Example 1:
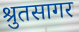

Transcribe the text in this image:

श्रुतसागर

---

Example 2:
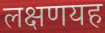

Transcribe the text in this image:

लक्षणयह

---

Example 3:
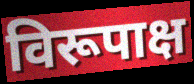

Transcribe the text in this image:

विरूपाक्ष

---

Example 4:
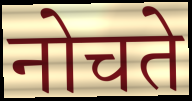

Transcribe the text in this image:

नोचते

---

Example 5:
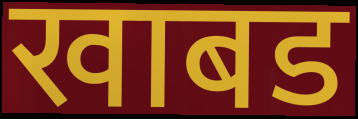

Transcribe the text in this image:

खाबड